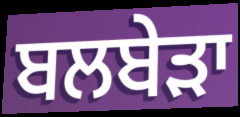
ਬਲਬੇਡ਼ਾ